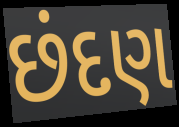
છંદણ